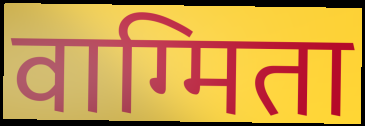
वाग्मिता